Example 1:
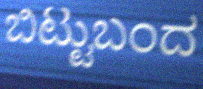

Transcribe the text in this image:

ಬಿಟ್ಟುಬಂದ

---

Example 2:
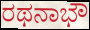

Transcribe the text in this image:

ರಥನಾಭೌ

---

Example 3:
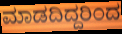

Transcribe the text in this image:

ಮಾಡದಿದ್ದರಿಂದ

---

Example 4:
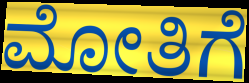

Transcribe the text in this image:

ಮೋತಿಗೆ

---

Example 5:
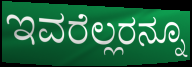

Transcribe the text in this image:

ಇವರೆಲ್ಲರನ್ನೂ